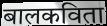
बालकविता